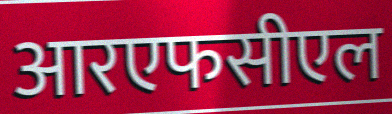
आरएफसीएल